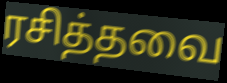
ரசித்தவை